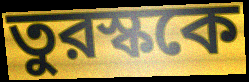
তুরস্ককে